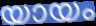
യായം